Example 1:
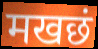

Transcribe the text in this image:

मखछं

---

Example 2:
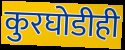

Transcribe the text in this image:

कुरघोडीही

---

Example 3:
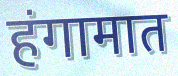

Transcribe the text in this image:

हंगामात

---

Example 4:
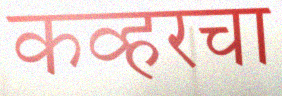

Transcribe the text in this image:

कव्हरचा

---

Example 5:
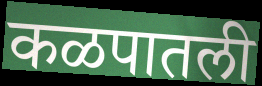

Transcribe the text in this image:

कळपातली